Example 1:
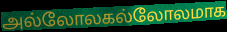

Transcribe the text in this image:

அல்லோலகல்லோலமாக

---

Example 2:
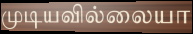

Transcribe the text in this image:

முடியவில்லையா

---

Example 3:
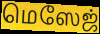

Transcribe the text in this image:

மெஸேஜ்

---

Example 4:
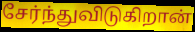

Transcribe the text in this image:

சேர்ந்துவிடுகிறான்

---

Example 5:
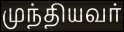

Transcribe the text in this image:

முந்தியவர்